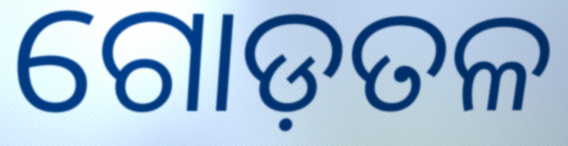
ଗୋଡ଼ତଳ